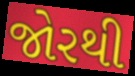
જોરથી